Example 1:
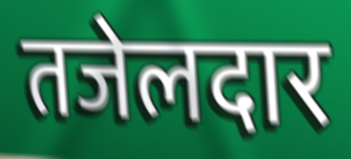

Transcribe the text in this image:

तजेलदार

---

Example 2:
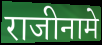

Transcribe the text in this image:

राजीनामे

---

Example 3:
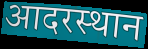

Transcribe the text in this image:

आदरस्थान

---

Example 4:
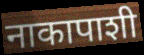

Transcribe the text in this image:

नाकापाशी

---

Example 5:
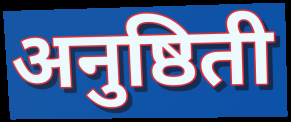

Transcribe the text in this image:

अनुष्ठिती